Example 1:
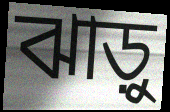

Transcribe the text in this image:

ঝাড়ু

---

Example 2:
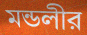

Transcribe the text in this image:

মন্ডলীর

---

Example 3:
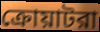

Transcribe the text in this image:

ক্রোয়াটরা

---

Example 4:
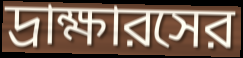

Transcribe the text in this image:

দ্রাক্ষারসের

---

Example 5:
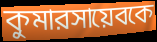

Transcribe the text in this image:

কুমারসায়েবকে